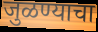
जुळण्याचा